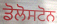
ਡੋਲੋਸਟੋਨ